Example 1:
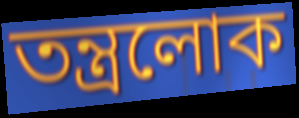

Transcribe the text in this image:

তন্ত্রলোক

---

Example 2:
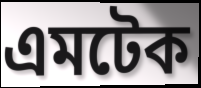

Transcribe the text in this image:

এমটেক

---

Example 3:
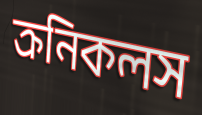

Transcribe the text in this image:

ক্রনিকলস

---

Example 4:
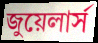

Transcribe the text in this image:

জুয়েলার্স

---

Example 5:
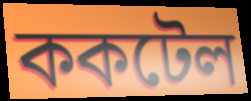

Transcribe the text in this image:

ককটেল